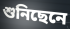
শুনিছেনে